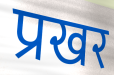
प्रखर